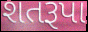
શતરૂપા